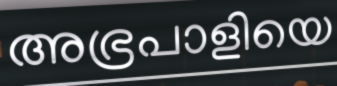
അഭ്രപാളിയെ